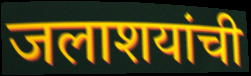
जलाशयांची